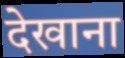
देखाना